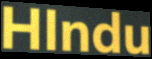
HIndu